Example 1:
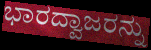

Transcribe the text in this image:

ಭಾರದ್ವಾಜರನ್ನು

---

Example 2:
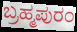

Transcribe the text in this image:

ಬ್ರಹ್ಮಪುರಂ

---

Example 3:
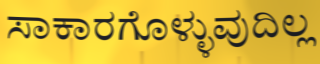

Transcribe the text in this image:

ಸಾಕಾರಗೊಳ್ಳುವುದಿಲ್ಲ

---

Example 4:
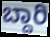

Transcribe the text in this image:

ಬ್ದಾರಿ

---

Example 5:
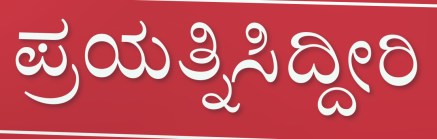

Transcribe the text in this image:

ಪ್ರಯತ್ನಿಸಿದ್ದೀರಿ